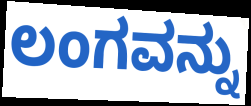
ಲಂಗವನ್ನು